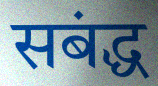
सबंद्ध